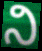
ನಿ